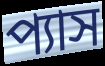
প্যাস